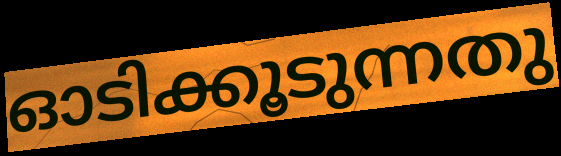
ഓടിക്കൂടുന്നതു